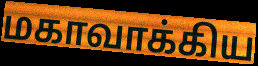
மகாவாக்கிய